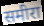
समीरा